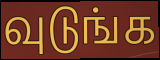
வுடுங்க